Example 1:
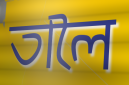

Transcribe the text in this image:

তালৈ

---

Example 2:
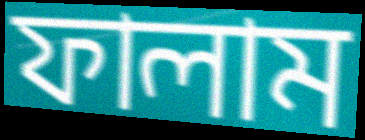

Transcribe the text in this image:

ফালাম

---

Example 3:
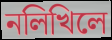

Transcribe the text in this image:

নলিখিলে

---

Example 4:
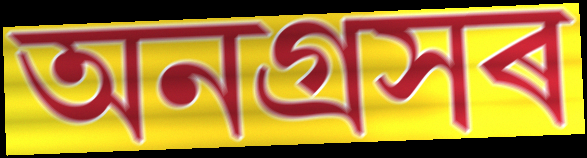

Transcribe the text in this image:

অনগ্ৰসৰ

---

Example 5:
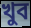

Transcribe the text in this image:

খুব